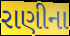
રાણીના